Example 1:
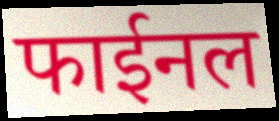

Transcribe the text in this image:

फाईनल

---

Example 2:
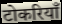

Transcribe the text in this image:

टोकरियाँ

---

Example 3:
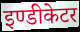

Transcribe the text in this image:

इण्डीकेटर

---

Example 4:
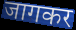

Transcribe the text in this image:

जागकर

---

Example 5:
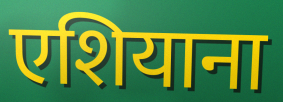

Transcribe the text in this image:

एशियाना